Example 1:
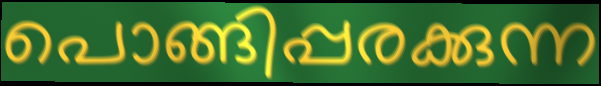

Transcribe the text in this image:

പൊങ്ങിപ്പരക്കുന്ന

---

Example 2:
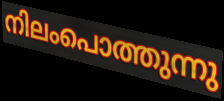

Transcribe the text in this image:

നിലംപൊത്തുന്നു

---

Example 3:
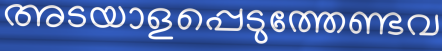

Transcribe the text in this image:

അടയാളപ്പെടുത്തേണ്ടവ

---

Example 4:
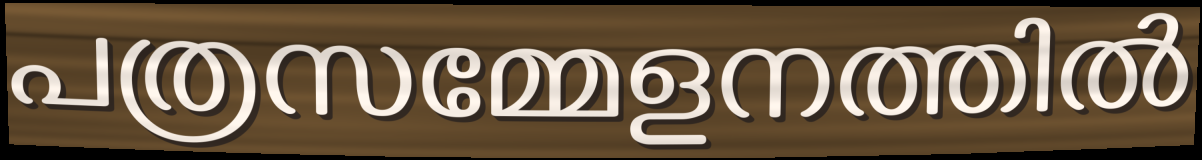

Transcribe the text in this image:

പത്രസമ്മേളനത്തിൽ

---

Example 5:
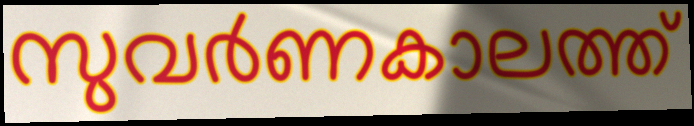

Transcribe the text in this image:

സുവർണകാലത്ത്